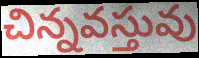
చిన్నవస్తువు